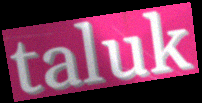
taluk